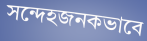
সন্দেহজনকভাবে